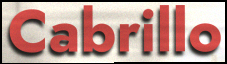
Cabrillo